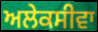
ਅਲੇਕਸੀਵਾ